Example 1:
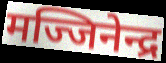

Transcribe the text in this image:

मज्जिनेन्द्र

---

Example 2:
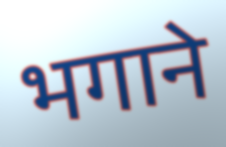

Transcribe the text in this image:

भगाने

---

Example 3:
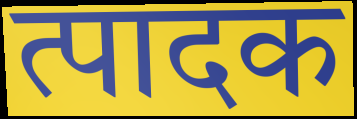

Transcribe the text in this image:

त्पादक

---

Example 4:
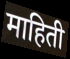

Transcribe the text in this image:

माहिती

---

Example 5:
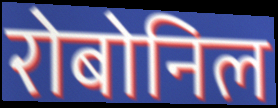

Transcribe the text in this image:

रोबोनिल